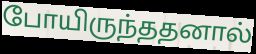
போயிருந்ததனால்